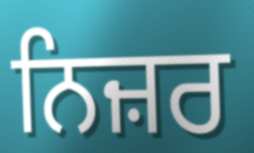
ਨਿਜ਼ਰ